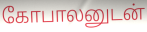
கோபாலனுடன்